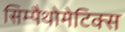
सिम्पैथोमेटिक्स